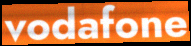
vodafone